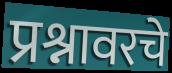
प्रश्नावरचे